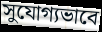
সুযোগ্যভাবে